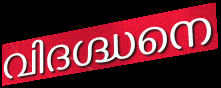
വിദഗ്ദ്ധനെ